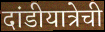
दांडीयात्रेची